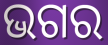
ଭଗର